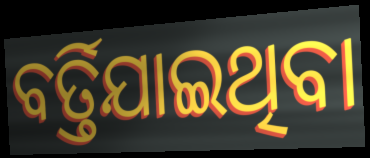
ବର୍ତ୍ତିଯାଇଥିବା